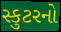
સ્કુટરનો